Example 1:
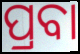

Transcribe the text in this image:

ପ୍ରବା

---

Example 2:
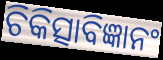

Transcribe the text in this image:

ଚିକିତ୍ସାବିଜ୍ଞାନଂ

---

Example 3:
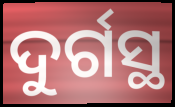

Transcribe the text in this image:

ଦୁର୍ଗସ୍ଥ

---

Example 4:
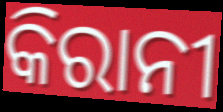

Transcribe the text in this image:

କିରାନୀ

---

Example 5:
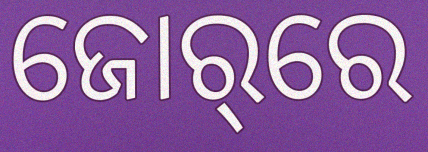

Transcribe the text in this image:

ଜୋର୍‌ରେ